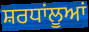
ਸ਼ਰਧਾਂਲੂਆਂ